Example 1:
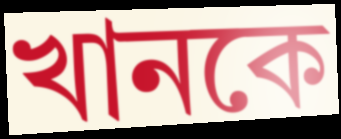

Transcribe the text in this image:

খানকে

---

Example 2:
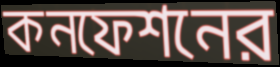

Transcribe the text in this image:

কনফেশনের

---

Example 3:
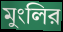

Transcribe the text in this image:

মুংলির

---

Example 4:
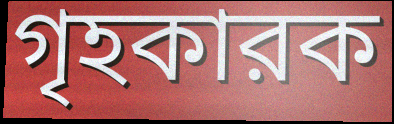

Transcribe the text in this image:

গৃহকারক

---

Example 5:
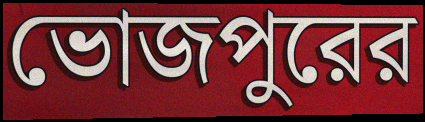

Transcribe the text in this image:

ভোজপুরের